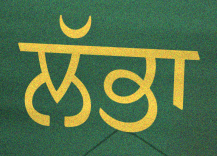
ਲੱਭਾ